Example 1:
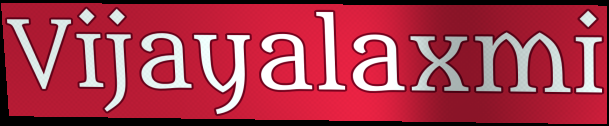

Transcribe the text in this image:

Vijayalaxmi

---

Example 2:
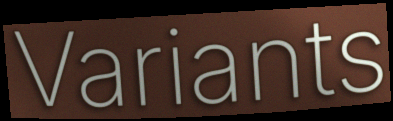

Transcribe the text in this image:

Variants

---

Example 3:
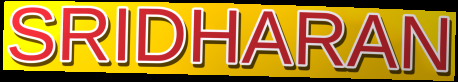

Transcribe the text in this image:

SRIDHARAN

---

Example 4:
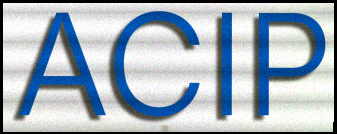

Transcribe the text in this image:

ACIP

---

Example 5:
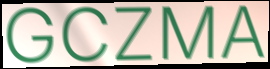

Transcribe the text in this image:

GCZMA